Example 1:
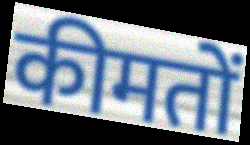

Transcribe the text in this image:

कीमतों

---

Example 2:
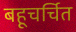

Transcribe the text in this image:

बहूचर्चित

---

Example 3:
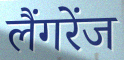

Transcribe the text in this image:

लैंगरेंज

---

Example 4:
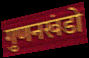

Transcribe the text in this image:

गुणनखंडो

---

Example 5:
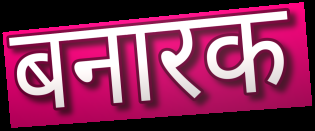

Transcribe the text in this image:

बनारक